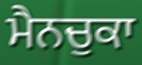
ਮੈਨਚੁਕਾ